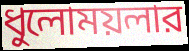
ধুলোময়লার